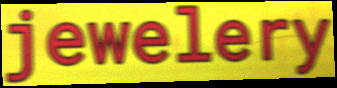
jewelery